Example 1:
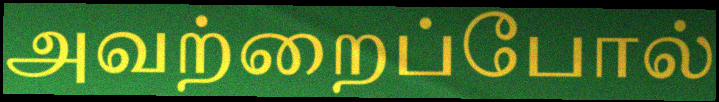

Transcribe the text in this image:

அவற்றைப்போல்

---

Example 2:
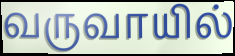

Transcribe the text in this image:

வருவாயில்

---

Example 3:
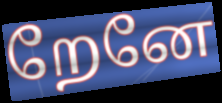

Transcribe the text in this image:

றேனே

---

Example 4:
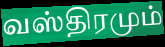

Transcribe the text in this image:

வஸ்திரமும்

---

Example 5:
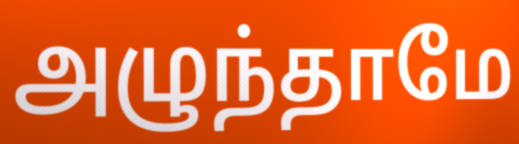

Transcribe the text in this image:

அழுந்தாமே